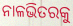
ନାଳଭିତରକୁ